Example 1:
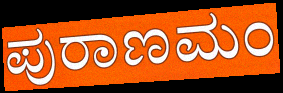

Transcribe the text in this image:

ಪುರಾಣಮಂ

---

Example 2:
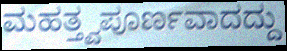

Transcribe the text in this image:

ಮಹತ್ತ್ವಪೂರ್ಣವಾದದ್ದು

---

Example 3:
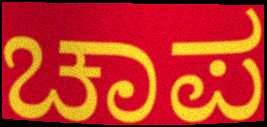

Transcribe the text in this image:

ಚಾಪ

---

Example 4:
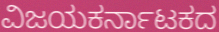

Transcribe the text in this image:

ವಿಜಯಕರ್ನಾಟಕದ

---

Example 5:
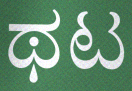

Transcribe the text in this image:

ಥಟ